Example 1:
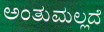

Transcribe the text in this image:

ಅಂತುಮಲ್ಲದೆ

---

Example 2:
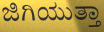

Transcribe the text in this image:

ಜಿಗಿಯುತ್ತಾ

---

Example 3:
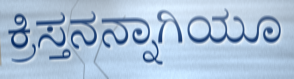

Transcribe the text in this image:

ಕ್ರಿಸ್ತನನ್ನಾಗಿಯೂ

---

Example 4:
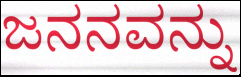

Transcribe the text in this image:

ಜನನವನ್ನು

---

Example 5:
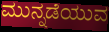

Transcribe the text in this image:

ಮುನ್ನಡೆಯುವ